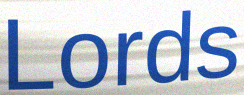
Lords